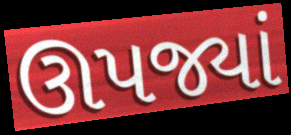
ઊપજ્યાં